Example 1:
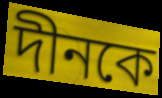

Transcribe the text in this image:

দীনকে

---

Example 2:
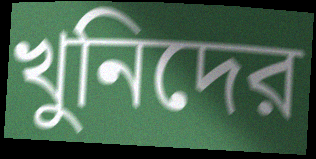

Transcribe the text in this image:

খুনিদের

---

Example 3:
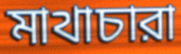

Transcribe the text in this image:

মাথাচারা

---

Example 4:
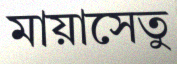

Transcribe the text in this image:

মায়াসেতু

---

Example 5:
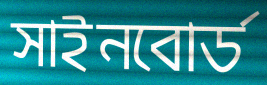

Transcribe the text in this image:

সাইনবোর্ড